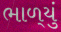
ભાળ્‌યું